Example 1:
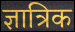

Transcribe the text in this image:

ज्ञात्रिक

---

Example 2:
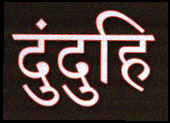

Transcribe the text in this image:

दुंदुहि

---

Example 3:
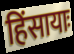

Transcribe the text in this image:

हिंसायाः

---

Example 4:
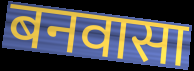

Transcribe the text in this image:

बनवासा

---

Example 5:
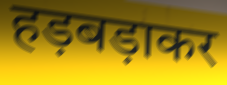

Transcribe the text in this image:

हड़बड़ाकर